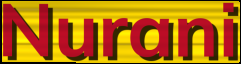
Nurani